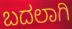
ಬದಲಾಗಿ